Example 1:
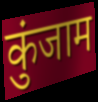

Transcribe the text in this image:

कुंजाम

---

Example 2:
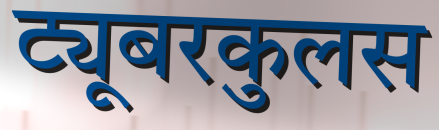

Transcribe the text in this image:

ट्यूबरकुलस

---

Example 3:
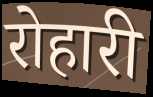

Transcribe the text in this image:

रोहारी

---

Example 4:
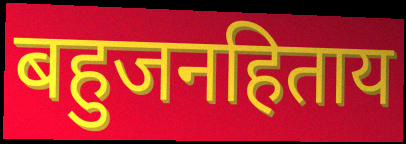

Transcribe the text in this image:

बहुजनहिताय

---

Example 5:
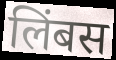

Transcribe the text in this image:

लिंबस